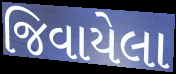
જિવાયેલા